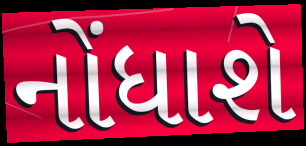
નોંધાશે